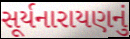
સૂર્યનારાયણનું